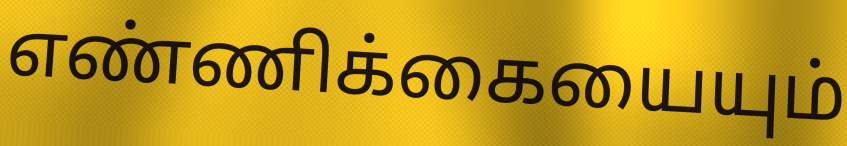
எண்ணிக்கையையும்